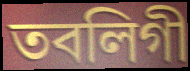
তবলিগী